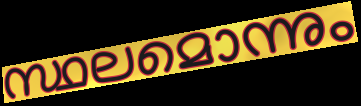
സ്ഥലമൊന്നും